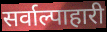
सर्वाल्पाहारी